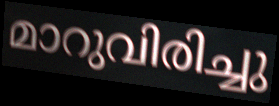
മാറുവിരിച്ചു